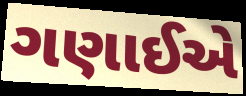
ગણાઈએ